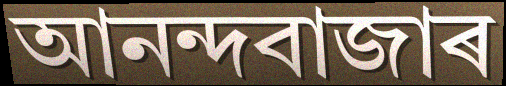
আনন্দবাজাৰ